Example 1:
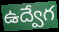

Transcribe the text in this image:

ఉద్వేగ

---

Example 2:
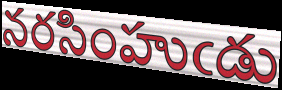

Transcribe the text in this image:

నరసింహుఁడు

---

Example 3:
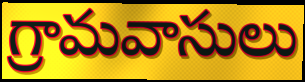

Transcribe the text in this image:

గ్రామవాసులు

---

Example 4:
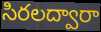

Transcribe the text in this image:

సిరలద్వారా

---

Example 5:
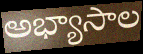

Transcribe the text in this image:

అభ్యాసాల